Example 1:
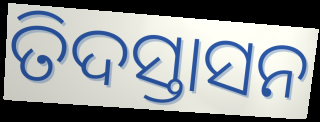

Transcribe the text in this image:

ତିଦସ୍ତାସନ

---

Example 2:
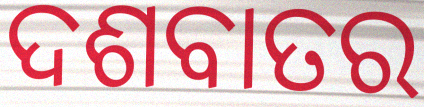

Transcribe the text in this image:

ଦଶବାତର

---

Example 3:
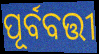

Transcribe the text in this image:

ପୂର୍ବବତ୍ତୀ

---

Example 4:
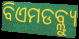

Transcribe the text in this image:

ବିଏମଡବ୍ଲ୍ୟୁ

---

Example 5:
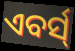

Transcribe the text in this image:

ଏବର୍ସ୍